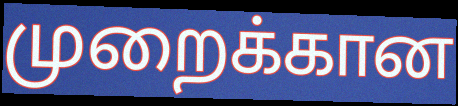
முறைக்கான